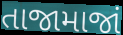
તાજામાજાં